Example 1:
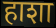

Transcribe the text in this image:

हाशा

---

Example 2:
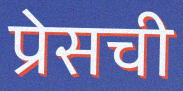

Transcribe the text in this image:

प्रेसची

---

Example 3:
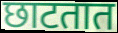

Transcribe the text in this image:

छाटतात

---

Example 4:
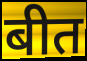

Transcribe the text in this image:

बीत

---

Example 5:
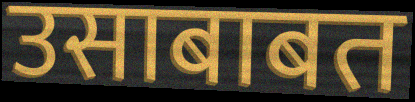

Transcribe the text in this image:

उसाबाबत